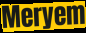
Meryem